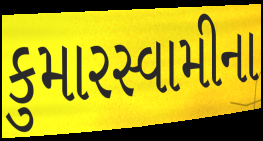
કુમારસ્વામીના